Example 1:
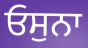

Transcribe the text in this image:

ਓਸੁਨਾ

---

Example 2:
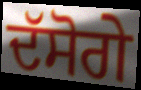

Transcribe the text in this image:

ਦੱਸੋਗੇ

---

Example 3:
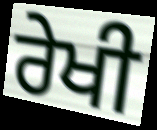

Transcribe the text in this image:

ਰੇਖੀ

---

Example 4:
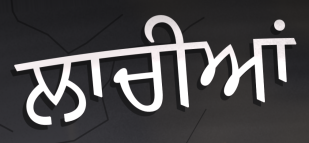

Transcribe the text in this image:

ਲਾਚੀਆਂ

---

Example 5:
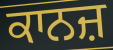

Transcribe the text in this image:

ਕਾਨਜ਼